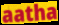
aatha